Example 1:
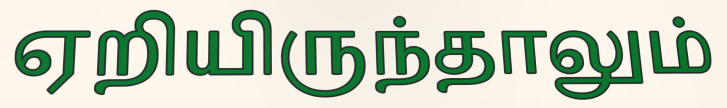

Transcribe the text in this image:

ஏறியிருந்தாலும்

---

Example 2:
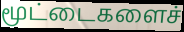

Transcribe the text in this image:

மூட்டைகளைச்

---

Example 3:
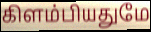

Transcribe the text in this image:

கிளம்பியதுமே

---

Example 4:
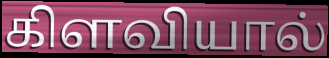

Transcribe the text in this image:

கிளவியால்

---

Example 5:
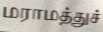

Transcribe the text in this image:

மராமத்துச்